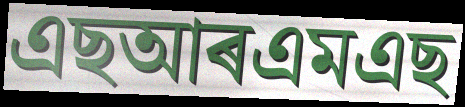
এছআৰএমএছ